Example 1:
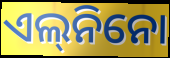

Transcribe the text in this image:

ଏଲ୍‌ନିନୋ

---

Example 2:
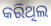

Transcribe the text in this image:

କରିଥିଲ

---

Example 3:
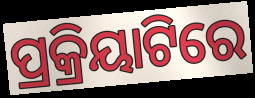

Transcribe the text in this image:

ପ୍ରକ୍ରିୟାଟିରେ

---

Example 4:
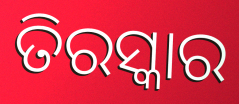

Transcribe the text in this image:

ତିରସ୍କାର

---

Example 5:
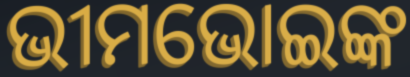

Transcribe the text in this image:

ଭୀମଭୋଇଙ୍କ